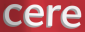
cere